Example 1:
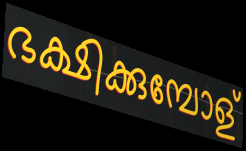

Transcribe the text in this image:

ഭക്ഷിക്കുമ്പോള്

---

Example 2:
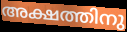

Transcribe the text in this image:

അക്ഷത്തിനു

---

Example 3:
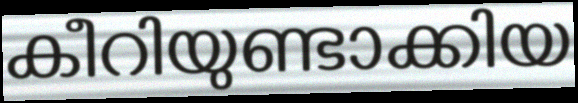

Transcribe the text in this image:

കീറിയുണ്ടാക്കിയ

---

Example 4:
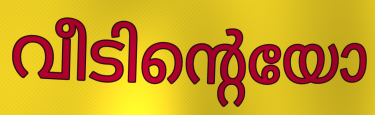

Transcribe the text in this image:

വീടിന്റെയോ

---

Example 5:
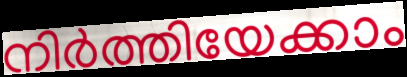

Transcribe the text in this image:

നിർത്തിയേക്കാം